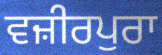
ਵਜ਼ੀਰਪੁਰਾ